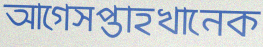
আগেসপ্তাহখানেক